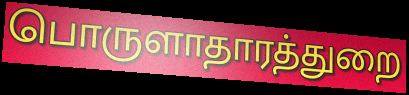
பொருளாதாரத்துறை